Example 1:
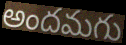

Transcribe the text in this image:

అందమగు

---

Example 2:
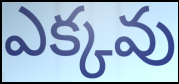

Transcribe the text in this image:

ఎక్కవు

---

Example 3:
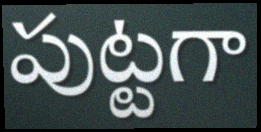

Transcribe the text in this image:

పుట్టగా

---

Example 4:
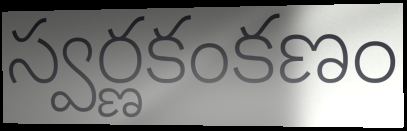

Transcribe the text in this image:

స్వర్ణకంకణం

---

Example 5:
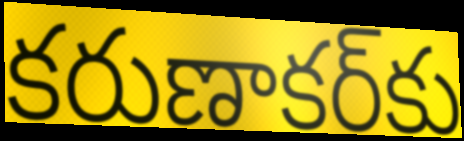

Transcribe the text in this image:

కరుణాకర్‌కు